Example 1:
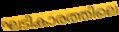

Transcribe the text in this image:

ഘടികാരത്തിലെ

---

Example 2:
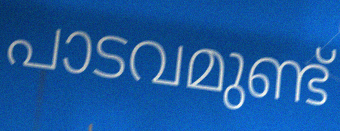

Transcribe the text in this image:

പാടവമുണ്ട്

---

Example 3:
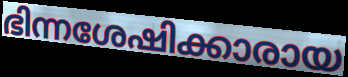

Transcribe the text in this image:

ഭിന്നശേഷിക്കാരായ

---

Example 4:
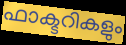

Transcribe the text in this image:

ഫാക്ടറികളും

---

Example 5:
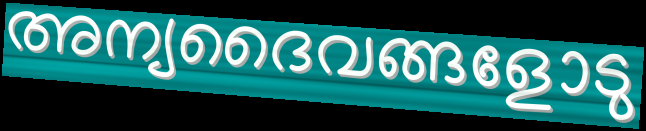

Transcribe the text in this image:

അന്യദൈവങ്ങളോടു